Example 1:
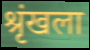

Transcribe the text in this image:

श्रृंखला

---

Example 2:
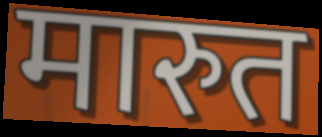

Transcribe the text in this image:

मारुत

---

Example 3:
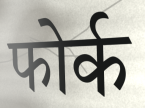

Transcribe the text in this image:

फोर्क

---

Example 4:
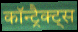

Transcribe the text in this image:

कॉन्‍ट्रैक्‍ट्स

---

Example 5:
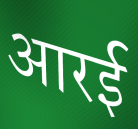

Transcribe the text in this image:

आरई